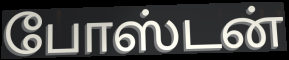
போஸ்டன்